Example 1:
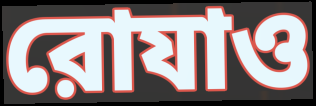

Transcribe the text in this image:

রোযাও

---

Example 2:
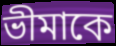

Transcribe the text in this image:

ভীমাকে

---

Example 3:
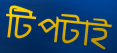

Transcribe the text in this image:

টিপটাই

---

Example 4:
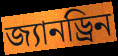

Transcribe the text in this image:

জ্যানড্রিন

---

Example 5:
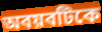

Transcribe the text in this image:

অবয়বটিকে